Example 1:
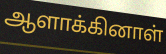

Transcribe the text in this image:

ஆளாக்கினாள்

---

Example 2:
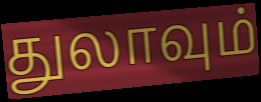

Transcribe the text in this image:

துலாவும்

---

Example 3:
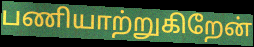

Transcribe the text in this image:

பணியாற்றுகிறேன்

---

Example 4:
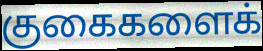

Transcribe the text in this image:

குகைகளைக்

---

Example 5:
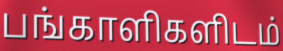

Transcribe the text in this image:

பங்காளிகளிடம்